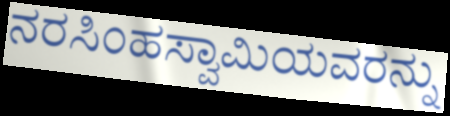
ನರಸಿಂಹಸ್ವಾಮಿಯವರನ್ನು